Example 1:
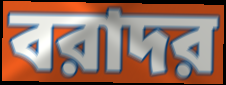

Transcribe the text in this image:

বরাদর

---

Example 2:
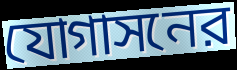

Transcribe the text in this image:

যোগাসনের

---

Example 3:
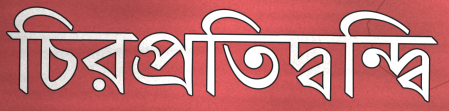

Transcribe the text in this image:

চিরপ্রতিদ্বন্দ্বি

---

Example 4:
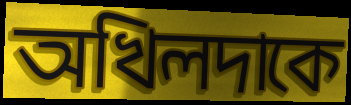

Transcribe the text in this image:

অখিলদাকে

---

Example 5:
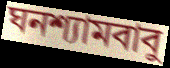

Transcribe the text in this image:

ঘনশ্যামবাবু